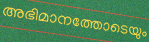
അഭിമാനത്തോടെയും